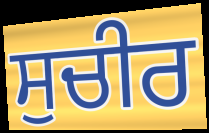
ਸੁਚੀਰ